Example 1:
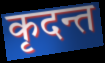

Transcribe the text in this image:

कृदन्त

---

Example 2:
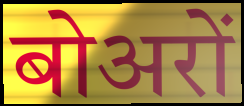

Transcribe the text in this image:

बोअरों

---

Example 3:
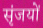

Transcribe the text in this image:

सृंजयों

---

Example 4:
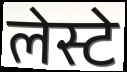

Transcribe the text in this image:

लेस्टे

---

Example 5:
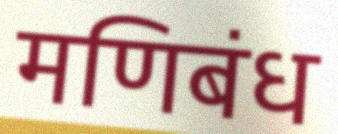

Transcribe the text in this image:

मणिबंध